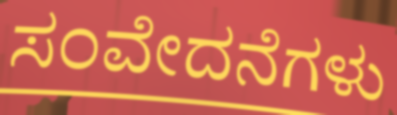
ಸಂವೇದನೆಗಳು